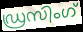
ഡ്രസിംഗ്